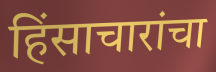
हिंसाचारांचा